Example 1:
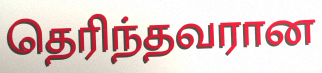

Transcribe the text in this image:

தெரிந்தவரான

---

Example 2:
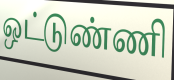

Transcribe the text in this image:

ஒட்டுண்ணி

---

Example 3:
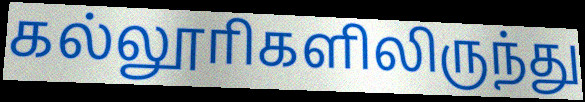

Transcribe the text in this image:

கல்லூரிகளிலிருந்து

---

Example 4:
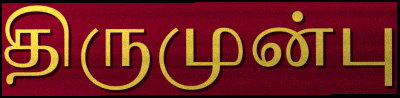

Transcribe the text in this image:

திருமுன்பு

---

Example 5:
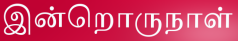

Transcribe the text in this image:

இன்றொருநாள்